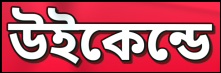
উইকেন্ডে